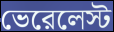
ভেরেলেস্ট